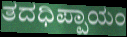
ತದಧಿಪ್ಪಾಯಂ